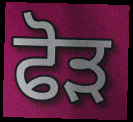
ਫੋਡ਼